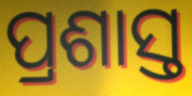
ପ୍ରଶାସ୍ତ